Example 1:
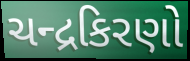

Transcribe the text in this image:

ચન્દ્રકિરણો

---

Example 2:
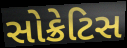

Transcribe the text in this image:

સોક્રેટિસ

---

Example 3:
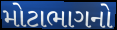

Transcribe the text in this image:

મોટાભાગનો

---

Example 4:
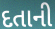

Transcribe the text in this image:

દતાની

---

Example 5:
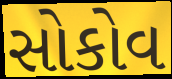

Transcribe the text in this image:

સોકોવ